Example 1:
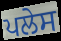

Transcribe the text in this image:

ਪਲੇਸ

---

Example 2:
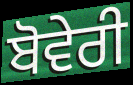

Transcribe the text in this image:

ਬੋਵੇਰੀ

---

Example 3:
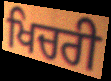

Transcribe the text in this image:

ਖਿਚਰੀ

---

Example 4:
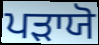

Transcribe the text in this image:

ਪੜਾਯੋ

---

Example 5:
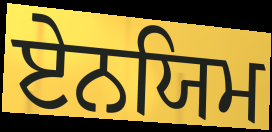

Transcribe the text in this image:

ਏਨਯਿਮ